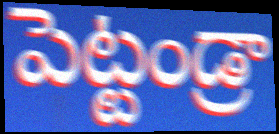
పెట్టండ్రా